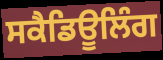
ਸਕੈਡਿਊਲਿੰਗ